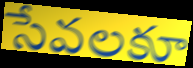
సేవలకూ